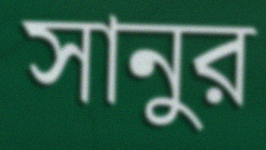
সানুর